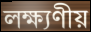
লক্ষ্যণীয়